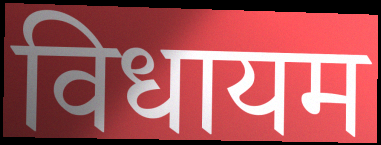
विधायम